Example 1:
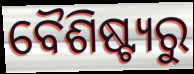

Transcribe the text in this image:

ବୈଶିଷ୍ଟ୍ୟରୁ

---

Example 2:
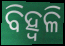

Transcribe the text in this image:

ବିହ୍ୱଳି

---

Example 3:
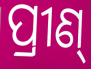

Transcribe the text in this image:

ପ୍ରୀଣ୍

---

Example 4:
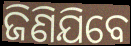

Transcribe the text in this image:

ଜିଣିଯିବେ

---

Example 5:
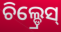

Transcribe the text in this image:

ଚିଲ୍ଡ୍ରେସ୍